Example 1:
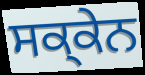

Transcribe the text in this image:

ਸਕ੍ਕੇਨ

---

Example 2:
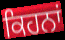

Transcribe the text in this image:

ਕਿਹਨਾਂ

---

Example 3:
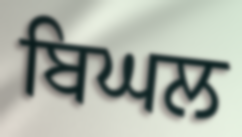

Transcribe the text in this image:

ਬਿਘਲ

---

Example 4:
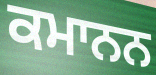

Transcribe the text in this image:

ਕਮਾਨਨ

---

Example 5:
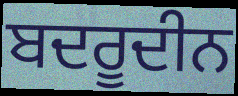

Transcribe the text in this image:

ਬਦਰੂਦੀਨ